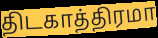
திடகாத்திரமா